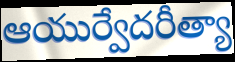
ఆయుర్వేదరీత్యా